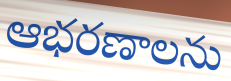
ఆభరణాలను